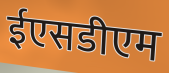
ईएसडीएम